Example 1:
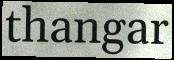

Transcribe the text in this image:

thangar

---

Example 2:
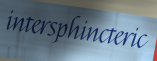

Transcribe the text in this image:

intersphincteric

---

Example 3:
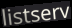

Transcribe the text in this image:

listserv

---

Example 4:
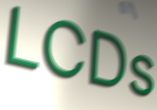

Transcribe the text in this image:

LCDs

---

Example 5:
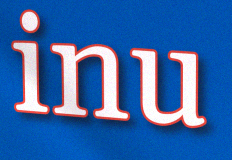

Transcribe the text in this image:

inu